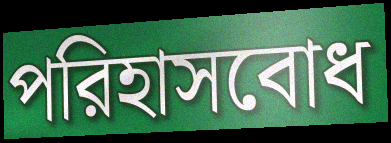
পরিহাসবোধ